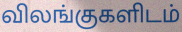
விலங்குகளிடம்